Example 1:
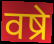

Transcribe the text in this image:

वष्रे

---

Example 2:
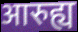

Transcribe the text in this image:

आरुह्य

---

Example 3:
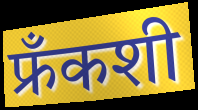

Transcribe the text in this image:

फ्रँकशी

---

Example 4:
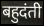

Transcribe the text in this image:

बहुदंती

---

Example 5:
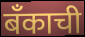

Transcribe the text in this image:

बँकाची